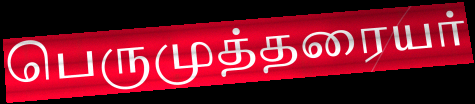
பெருமுத்தரையர்